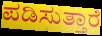
ಪಡಿಸುತ್ತಾರೆ